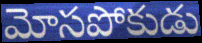
మోసపోకుడు